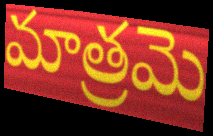
మాత్రమె